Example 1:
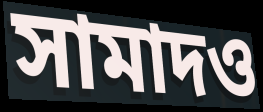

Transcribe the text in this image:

সামাদও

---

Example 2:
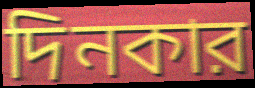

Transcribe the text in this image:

দিনকার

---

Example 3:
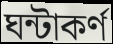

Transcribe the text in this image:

ঘন্টাকর্ণ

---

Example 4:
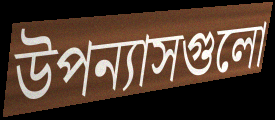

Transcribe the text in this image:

উপন্যাসগুলো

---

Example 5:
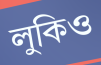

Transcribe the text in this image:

লুকিও